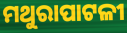
ମଥୁରାପାଟଳୀ